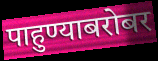
पाहुण्याबरोबर